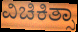
ವಿಚಿಕಿತ್ಸಾ